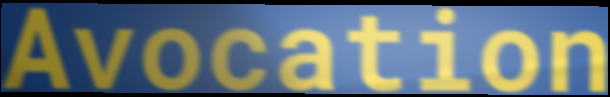
Avocation